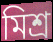
মিশ্ৰ